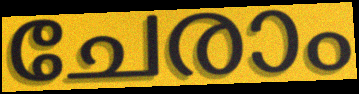
ചേരാം